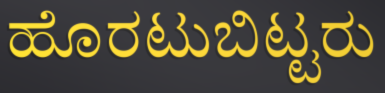
ಹೊರಟುಬಿಟ್ಟರು